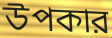
উপকার